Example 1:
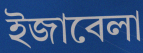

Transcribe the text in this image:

ইজাবেলা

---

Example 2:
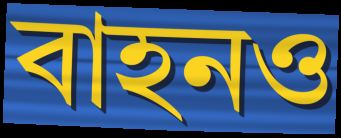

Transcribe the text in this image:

বাহনও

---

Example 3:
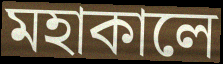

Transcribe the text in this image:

মহাকালে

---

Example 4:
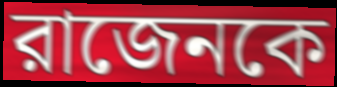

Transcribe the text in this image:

রাজেনকে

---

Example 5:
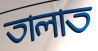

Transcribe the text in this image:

তালাত